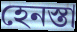
হেনস্তা